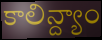
కాలిన్ద్యాం